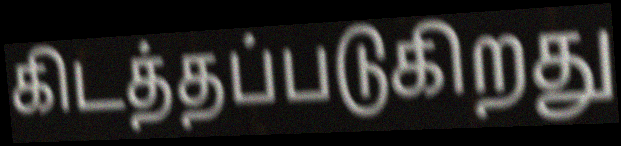
கிடத்தப்படுகிறது